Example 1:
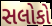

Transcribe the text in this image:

સલોકો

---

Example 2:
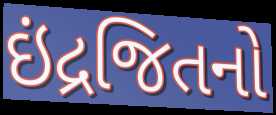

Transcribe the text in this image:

ઇંદ્રજિતનો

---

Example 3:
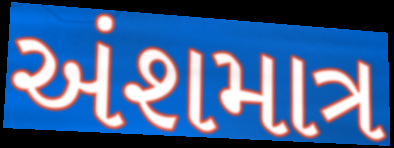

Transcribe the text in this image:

અંશમાત્ર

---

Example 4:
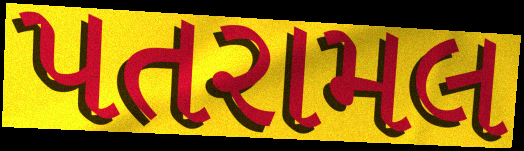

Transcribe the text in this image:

પતરામલ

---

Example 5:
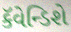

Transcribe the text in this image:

કૅવેન્ડિશે